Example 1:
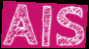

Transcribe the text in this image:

AIS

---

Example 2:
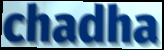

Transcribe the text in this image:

chadha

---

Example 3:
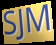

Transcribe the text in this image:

SJM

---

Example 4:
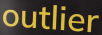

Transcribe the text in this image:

outlier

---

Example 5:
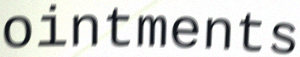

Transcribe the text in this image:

ointments